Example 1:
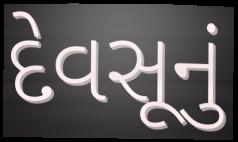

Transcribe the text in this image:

દેવસૂનું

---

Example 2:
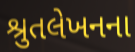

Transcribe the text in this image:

શ્રુતલેખનના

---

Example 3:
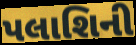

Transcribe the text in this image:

પલાશિની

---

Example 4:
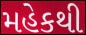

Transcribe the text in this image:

મહેકથી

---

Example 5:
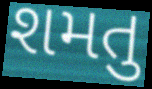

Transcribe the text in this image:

શમતુ